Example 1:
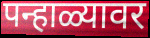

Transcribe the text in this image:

पन्हाळ्यावर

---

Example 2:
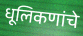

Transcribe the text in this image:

धूलिकणांचे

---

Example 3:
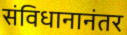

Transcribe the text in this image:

संविधानानंतर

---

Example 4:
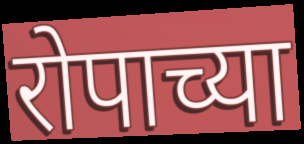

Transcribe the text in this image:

रोपाच्या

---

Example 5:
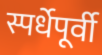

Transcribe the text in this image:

स्पर्धेपूर्वी